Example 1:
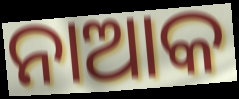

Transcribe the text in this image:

ନାଆକ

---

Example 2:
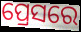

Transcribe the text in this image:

ପ୍ରେସରେ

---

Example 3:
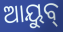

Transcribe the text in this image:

ଆୟୁବ୍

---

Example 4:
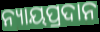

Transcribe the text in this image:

ନ୍ୟାୟପ୍ରଦାନ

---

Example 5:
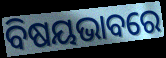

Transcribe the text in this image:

ବିଷୟଭାବରେ